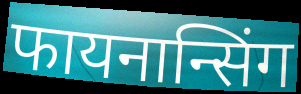
फायनान्सिंग